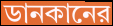
ডানকানের